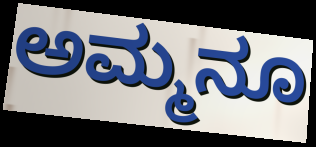
ಅಮ್ಮನೂ